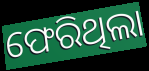
ଫେରିଥିଲା